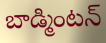
బాడ్మింటన్